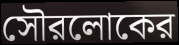
সৌরলোকের